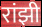
रांझी